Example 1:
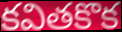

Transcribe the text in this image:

కవితకొక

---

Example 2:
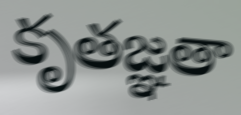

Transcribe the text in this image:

కృతజ్ఞతా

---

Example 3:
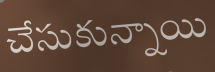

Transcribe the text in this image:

చేసుకున్నాయి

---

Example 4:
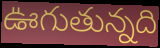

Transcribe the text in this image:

ఊగుతున్నది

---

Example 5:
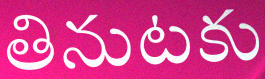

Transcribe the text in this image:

తినుటకు